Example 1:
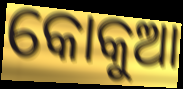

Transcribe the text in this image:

କୋକୁଆ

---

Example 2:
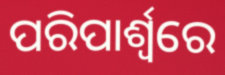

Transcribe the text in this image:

ପରିପାର୍ଶ୍ୱରେ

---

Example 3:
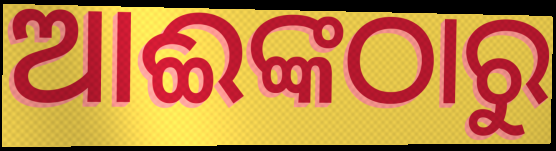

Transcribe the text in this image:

ଆଈଙ୍କଠାରୁ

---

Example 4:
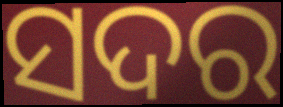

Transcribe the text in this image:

ସଦର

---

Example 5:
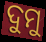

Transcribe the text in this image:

ଦୁମୁ